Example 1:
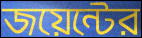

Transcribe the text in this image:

জয়েন্টের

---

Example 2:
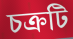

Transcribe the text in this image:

চক্রটি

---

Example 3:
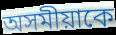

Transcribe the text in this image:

অসমীয়াকে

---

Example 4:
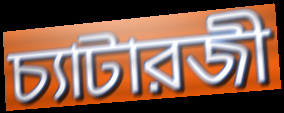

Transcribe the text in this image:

চ্যাটারজী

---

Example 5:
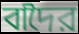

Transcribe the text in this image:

বাদৈর